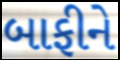
બાફીને